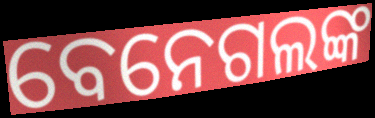
ବେନେଗଲଙ୍କ